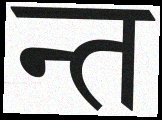
न्त